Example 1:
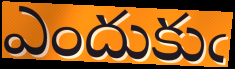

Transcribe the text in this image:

ఎందుకుఁ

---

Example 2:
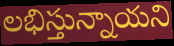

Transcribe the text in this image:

లభిస్తున్నాయని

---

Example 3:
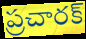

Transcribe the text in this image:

ప్రచారక్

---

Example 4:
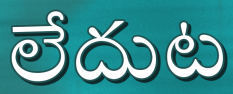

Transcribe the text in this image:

లేదుట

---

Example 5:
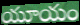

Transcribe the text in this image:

యూయం